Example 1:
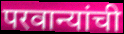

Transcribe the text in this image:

परवान्यांची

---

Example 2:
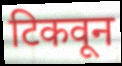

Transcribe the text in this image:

टिकवून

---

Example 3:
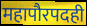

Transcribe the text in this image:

महापौरपदही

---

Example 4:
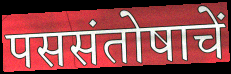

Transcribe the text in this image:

पससंतोषाचें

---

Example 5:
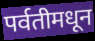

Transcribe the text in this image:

पर्वतीमधून